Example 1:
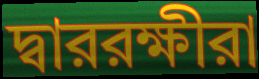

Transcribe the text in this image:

দ্বাররক্ষীরা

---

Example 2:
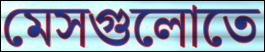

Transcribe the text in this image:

মেসগুলোতে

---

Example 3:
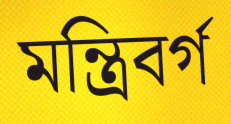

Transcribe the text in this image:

মন্ত্রিবর্গ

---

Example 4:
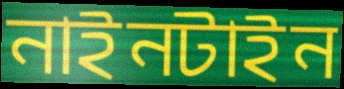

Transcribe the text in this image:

নাইনটাইন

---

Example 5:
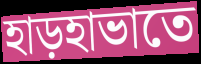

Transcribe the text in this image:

হাড়হাভাতে